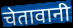
चेतावानी